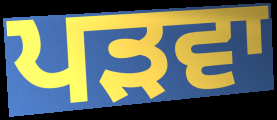
ਪੜਵਾ